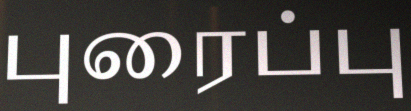
புரைப்பு